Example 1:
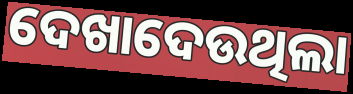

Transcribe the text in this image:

ଦେଖାଦେଉଥିଲା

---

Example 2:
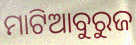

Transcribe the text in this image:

ମାଟିଆବୁରୁଜ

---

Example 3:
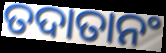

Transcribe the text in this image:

ତଦାତାନଂ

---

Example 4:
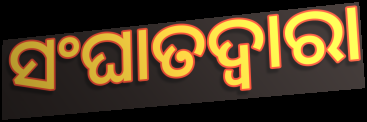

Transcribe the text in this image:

ସଂଘାତଦ୍ୱାରା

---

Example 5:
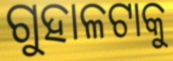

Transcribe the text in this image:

ଗୁହାଳଟାକୁ